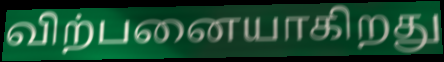
விற்பனையாகிறது